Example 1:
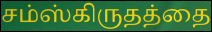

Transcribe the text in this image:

சம்ஸ்கிருதத்தை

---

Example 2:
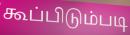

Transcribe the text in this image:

கூப்பிடும்படி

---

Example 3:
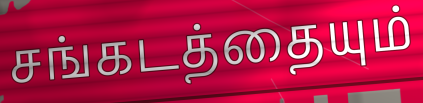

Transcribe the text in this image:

சங்கடத்தையும்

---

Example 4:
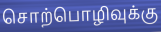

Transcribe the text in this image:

சொற்பொழிவுக்கு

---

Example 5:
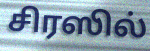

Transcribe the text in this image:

சிரஸில்